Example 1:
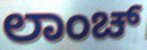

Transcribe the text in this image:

ಲಾಂಚ್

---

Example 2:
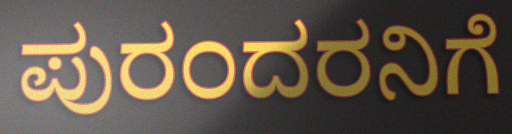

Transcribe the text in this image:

ಪುರಂದರನಿಗೆ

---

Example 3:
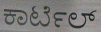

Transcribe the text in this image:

ಕಾರ್ಟೆಲ್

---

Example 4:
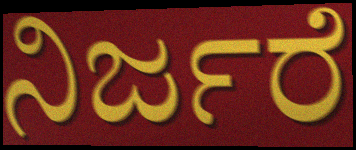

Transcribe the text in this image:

ನಿರ್ಜರೆ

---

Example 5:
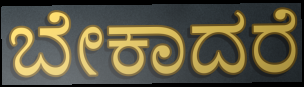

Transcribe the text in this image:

ಬೇಕಾದರೆ